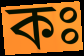
কঃ